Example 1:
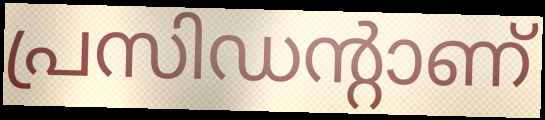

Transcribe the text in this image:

പ്രസിഡന്റാണ്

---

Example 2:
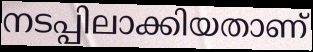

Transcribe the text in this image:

നടപ്പിലാക്കിയതാണ്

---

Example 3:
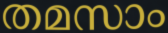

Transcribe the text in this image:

തമസാം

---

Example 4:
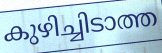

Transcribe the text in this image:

കുഴിച്ചിടാത്ത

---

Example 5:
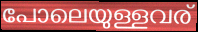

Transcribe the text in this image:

പോലെയുള്ളവര്